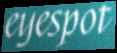
eyespot